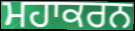
ਮਹਾਕਰਨ